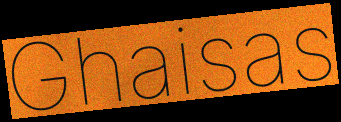
Ghaisas